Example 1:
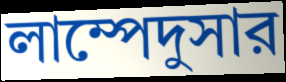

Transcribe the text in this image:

লাম্পেদুসার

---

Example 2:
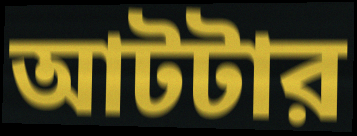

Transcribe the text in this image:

আটটার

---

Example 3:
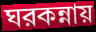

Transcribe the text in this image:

ঘরকন্নায়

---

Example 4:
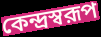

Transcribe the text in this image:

কেন্দ্রস্বরূপ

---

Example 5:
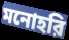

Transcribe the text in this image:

মনোহরি